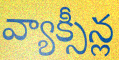
వ్యాక్సీన్ల